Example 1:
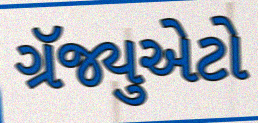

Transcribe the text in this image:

ગ્રૅજ્યુએટો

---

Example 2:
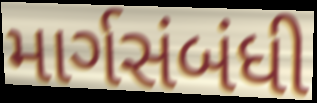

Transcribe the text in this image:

માર્ગસંબંધી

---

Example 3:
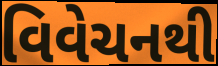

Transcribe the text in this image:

વિવેચનથી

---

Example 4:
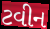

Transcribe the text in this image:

ટવીન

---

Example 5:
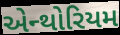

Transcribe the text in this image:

એન્થોરિયમ